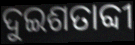
ଦୁଇଶତାବ୍ଦୀ